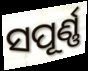
ସପୂର୍ଣ୍ଣ